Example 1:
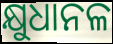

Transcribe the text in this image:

କ୍ଷୁଧାନଳ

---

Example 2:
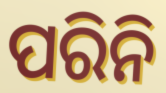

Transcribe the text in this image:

ପରିନି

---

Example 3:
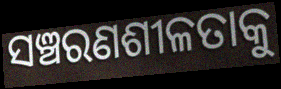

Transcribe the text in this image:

ସଞ୍ଚରଣଶୀଳତାକୁ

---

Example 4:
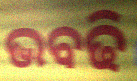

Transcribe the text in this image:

ଭବଢି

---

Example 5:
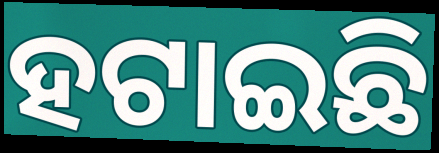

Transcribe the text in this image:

ହଟାଇଛି